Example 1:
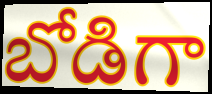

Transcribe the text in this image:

బోడిగా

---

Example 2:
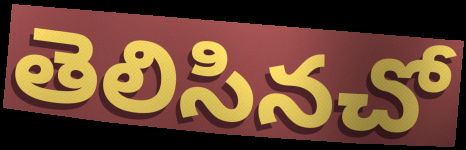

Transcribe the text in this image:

తెలిసినచో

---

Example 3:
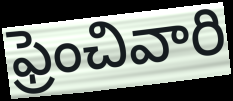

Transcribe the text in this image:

ఫ్రెంచివారి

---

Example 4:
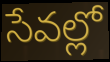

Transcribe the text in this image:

సేవల్లో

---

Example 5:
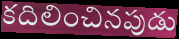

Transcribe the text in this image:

కదిలించినపుడు